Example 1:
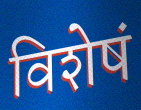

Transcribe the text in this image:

विशेषं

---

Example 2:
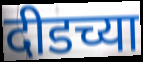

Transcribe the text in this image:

दीडच्या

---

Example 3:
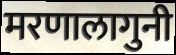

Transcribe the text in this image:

मरणालागुनी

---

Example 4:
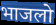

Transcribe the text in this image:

भाजलो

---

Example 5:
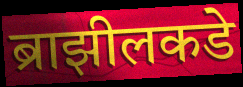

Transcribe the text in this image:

ब्राझीलकडे